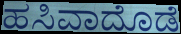
ಹಸಿವಾದೊಡೆ